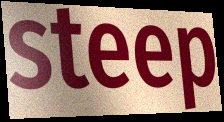
steep